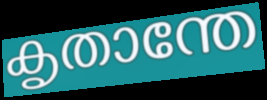
കൃതാന്തേ